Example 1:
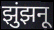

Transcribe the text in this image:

झुंझनू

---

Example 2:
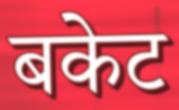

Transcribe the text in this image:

बकेट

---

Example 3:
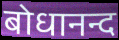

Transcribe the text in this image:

बोधानन्द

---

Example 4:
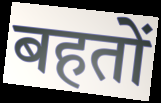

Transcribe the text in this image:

बहतों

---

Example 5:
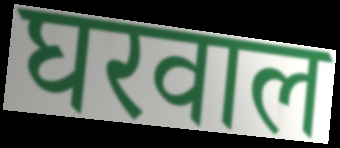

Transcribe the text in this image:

घरवाल